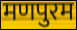
मणपुरम